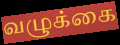
வழுக்கை